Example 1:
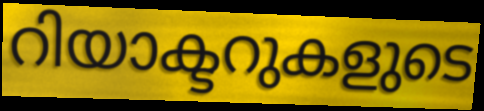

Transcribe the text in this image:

റിയാക്ടറുകളുടെ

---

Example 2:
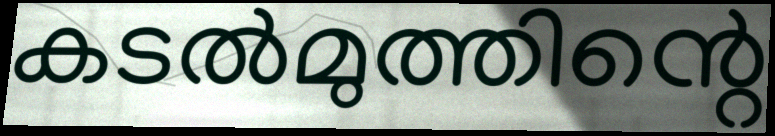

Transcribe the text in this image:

കടൽമുത്തിന്റെ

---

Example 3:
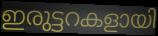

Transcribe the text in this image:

ഇരുട്ടറകളായി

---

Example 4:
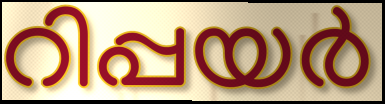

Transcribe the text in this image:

റിപ്പയർ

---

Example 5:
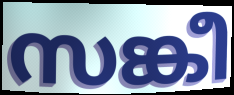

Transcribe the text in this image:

സങ്കീ